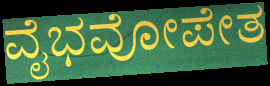
ವೈಭವೋಪೇತ